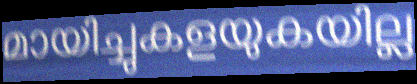
മായിച്ചുകളയുകയില്ല